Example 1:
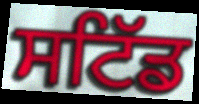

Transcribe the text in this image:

ਸਟਿੱਡ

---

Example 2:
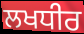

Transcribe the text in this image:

ਲਖਧੀਰ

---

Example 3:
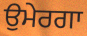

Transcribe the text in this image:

ਉਮੇਰਗਾ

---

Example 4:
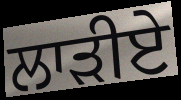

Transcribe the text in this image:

ਲਾੜੀਏ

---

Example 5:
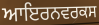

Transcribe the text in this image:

ਆਇਰਨਵਰਕਸ